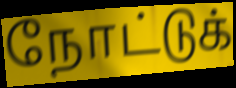
நோட்டுக்